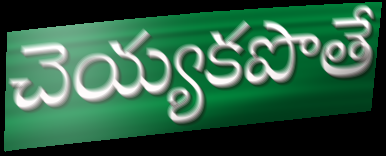
చెయ్యకపొతే